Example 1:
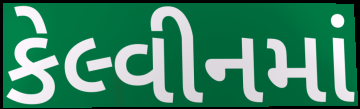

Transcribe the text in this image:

કેલ્વીનમાં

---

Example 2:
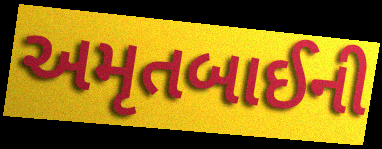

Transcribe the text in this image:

અમૃતબાઈની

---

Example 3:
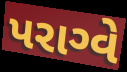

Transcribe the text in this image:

પરાગ્વે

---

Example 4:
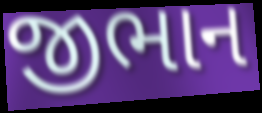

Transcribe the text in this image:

જીભાન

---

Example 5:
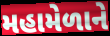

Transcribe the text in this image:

મહામેળાને